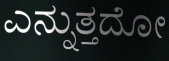
ಎನ್ನುತ್ತದೋ